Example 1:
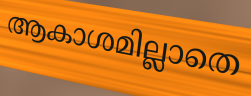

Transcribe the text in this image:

ആകാശമില്ലാതെ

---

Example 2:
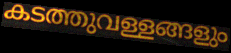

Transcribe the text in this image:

കടത്തുവള്ളങ്ങളും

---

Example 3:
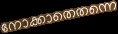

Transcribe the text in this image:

നോക്കാതെതന്നെ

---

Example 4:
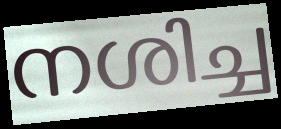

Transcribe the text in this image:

നശിച്ച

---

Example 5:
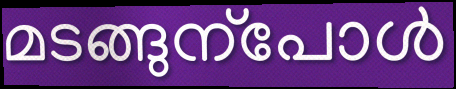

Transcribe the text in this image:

മടങ്ങുന്പോൾ